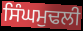
ਸਿੰਘਮੁਢਲੀ